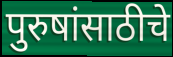
पुरुषांसाठीचे